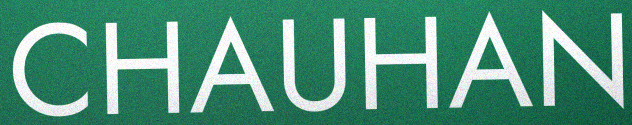
CHAUHAN